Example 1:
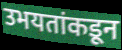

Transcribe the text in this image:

उभयतांकडून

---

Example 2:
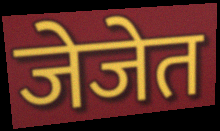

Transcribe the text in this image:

जेजेत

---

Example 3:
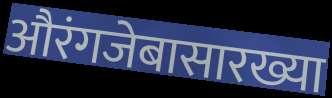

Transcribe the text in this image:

औरंगजेबासारख्या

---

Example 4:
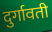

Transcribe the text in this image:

दुर्गावती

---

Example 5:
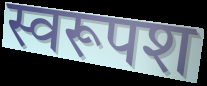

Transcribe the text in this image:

स्वरूपश